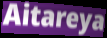
Aitareya